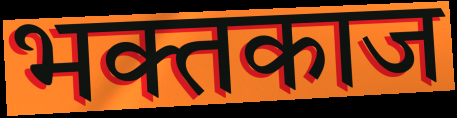
भक्तकाज